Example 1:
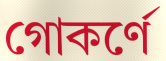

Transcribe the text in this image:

গোকর্ণে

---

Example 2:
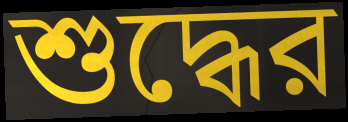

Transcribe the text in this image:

শুদ্ধের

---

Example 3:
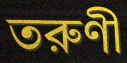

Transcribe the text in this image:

তরুণী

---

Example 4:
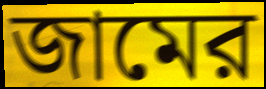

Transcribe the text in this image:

জামের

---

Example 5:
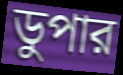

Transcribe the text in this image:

ডুপার